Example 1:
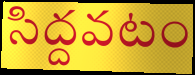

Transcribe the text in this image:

సిద్దవటం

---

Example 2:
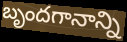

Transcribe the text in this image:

బృందగానాన్ని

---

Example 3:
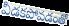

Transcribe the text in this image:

వీడకపోవడంతో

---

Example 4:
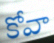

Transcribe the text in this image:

కోవా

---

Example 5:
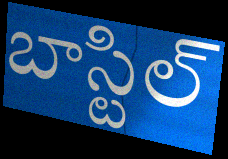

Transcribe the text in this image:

బాస్టిల్